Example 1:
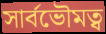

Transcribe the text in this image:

সার্বভৌমত্ব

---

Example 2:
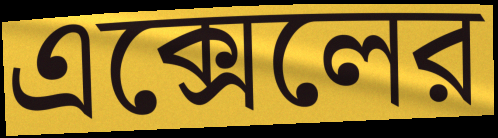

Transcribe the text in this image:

এক্সেলের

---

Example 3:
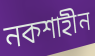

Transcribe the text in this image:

নকশাহীন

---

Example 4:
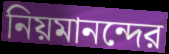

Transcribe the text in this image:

নিয়মানন্দের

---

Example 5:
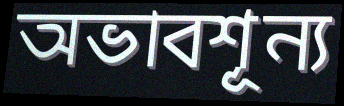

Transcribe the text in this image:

অভাবশূন্য